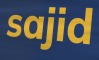
sajid